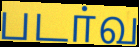
படர்வ